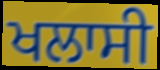
ਖਲਾਸੀ